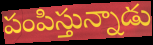
పంపిస్తున్నాడు